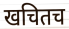
खचितच